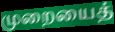
முறையைத்